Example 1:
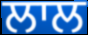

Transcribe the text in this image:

ਲਾਲ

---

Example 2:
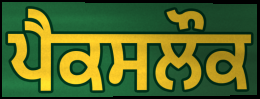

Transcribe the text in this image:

ਪੈਕਸਲੌਕ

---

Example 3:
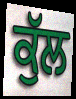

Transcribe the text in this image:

ਕੁੱਲ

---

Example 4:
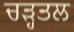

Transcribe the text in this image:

ਚੜ੍ਹਤਲ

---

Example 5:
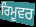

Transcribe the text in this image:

ਰਿਮੂਵਰ